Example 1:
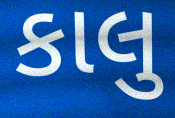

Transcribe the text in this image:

કાલુ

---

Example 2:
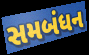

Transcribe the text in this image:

સમબંધન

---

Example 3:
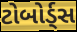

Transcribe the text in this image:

ટોબોર્ડ્સ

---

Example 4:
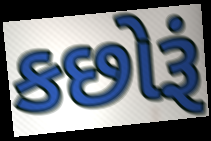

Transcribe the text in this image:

કછોરૂં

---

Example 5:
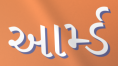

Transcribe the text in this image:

આર્મ્ડ